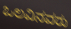
ಒಲವಿನವರು